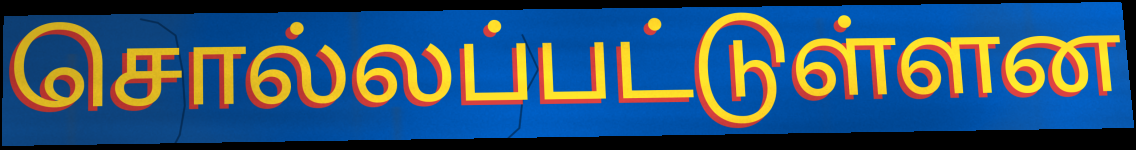
சொல்லப்பட்டுள்ளன